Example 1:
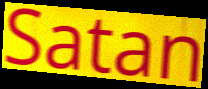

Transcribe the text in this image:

Satan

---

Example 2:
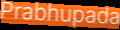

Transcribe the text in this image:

Prabhupada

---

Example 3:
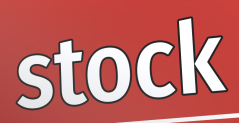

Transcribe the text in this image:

stock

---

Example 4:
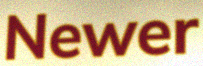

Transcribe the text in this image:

Newer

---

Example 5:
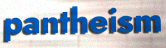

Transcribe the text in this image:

pantheism